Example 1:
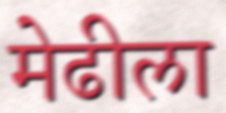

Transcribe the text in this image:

मेढीला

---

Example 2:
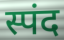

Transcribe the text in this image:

स्पंद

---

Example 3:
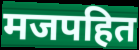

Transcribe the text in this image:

मजपहित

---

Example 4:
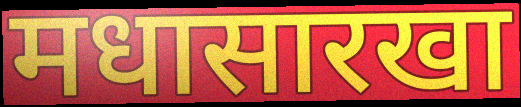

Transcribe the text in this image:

मधासारखा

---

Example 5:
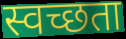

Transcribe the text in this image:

स्वच्छता